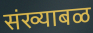
संख्याबळ